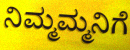
ನಿಮ್ಮಮ್ಮನಿಗೆ